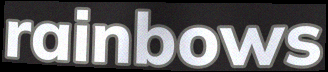
rainbows